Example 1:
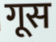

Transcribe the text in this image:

गूस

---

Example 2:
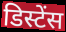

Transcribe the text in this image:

डिस्टेंस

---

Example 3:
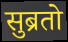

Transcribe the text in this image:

सुब्रतो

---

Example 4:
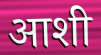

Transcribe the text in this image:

आशी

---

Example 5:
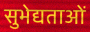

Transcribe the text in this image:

सुभेद्यताओं